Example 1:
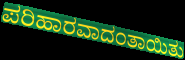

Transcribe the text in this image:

ಪರಿಹಾರವಾದಂತಾಯಿತು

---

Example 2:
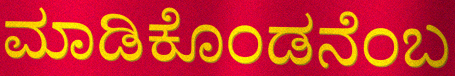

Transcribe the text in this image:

ಮಾಡಿಕೊಂಡನೆಂಬ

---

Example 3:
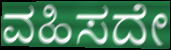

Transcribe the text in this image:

ವಹಿಸದೇ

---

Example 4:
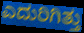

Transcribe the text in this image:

ಎದುರಿಗಿತ್ತು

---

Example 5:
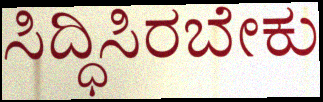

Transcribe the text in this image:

ಸಿದ್ಧಿಸಿರಬೇಕು